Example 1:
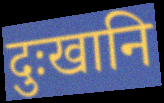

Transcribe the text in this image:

दुःखानि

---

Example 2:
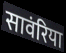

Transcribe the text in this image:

सावंरिया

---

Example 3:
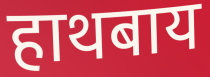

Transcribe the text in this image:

हाथबाय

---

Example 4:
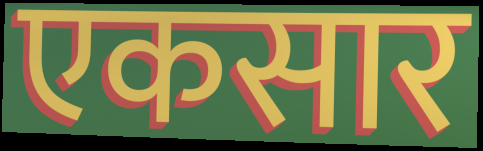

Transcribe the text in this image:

एकसार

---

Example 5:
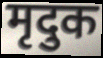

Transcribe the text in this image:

मृदुक